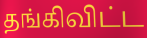
தங்கிவிட்ட